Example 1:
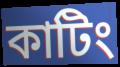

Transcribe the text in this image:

কাটিং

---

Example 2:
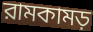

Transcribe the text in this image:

রামকামড়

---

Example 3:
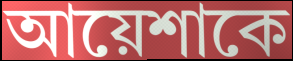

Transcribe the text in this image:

আয়েশাকে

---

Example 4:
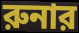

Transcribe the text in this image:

রুনার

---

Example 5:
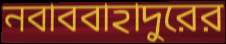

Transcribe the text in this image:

নবাববাহাদুরের